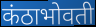
कंठाभोवती